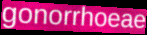
gonorrhoeae